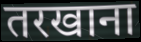
तरखाना